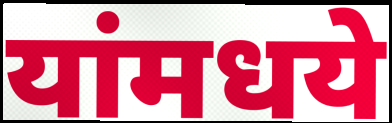
यांमधये